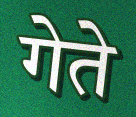
गेते